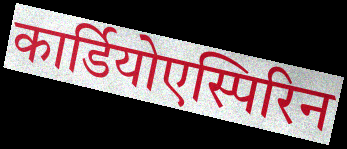
कार्डियोएस्पिरिन